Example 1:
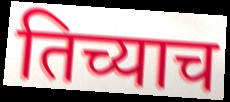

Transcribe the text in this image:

तिच्याच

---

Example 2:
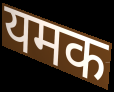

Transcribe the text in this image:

यमक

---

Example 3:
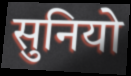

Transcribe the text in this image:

सुनियो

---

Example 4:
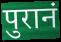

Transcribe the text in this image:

पुरानं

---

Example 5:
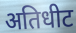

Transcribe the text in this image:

अतिधीट